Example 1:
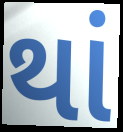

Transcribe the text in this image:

થાં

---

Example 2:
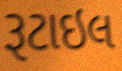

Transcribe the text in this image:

રૂટાઇલ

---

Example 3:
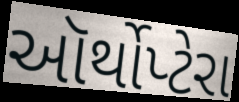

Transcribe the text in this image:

ઑર્થોપ્ટેરા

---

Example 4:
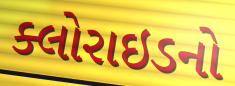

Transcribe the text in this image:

ક્લોરાઇડનો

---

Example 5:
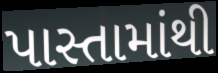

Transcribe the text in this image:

પાસ્તામાંથી